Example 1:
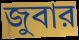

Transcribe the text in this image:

জুবার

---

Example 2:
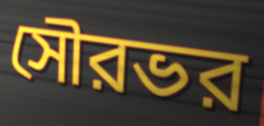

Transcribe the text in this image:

সৌরভর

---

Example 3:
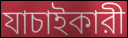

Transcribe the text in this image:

যাচাইকারী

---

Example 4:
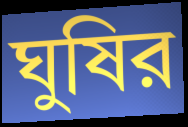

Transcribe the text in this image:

ঘুষির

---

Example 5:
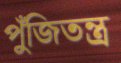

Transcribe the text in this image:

পুঁজিতন্ত্র